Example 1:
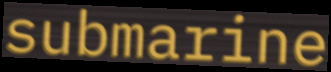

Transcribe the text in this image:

submarine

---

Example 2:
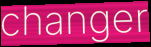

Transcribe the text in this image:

changer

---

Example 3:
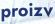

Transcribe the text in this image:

proizv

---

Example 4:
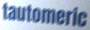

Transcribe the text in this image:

tautomeric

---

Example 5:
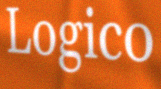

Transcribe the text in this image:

Logico